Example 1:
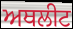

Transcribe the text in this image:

ਅਥਲੀਟ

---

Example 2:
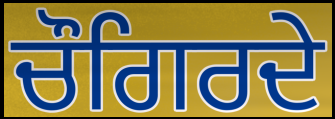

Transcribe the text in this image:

ਚੌਗਿਰਦੇ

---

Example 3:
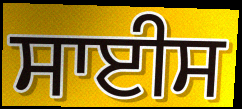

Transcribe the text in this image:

ਸਾਈਸ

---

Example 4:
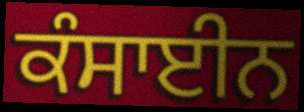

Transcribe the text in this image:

ਕੰਸਾਈਨ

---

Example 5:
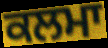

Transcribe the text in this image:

ਕਲਮਾ